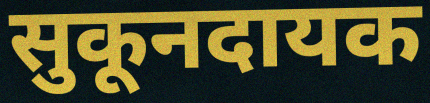
सुकूनदायक